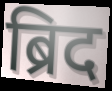
ब्रिद